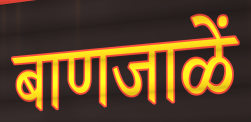
बाणजाळें